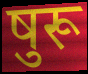
षुरू